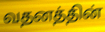
வதனத்தின்